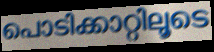
പൊടിക്കാറ്റിലൂടെ